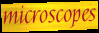
microscopes